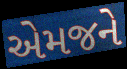
એમજને